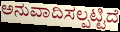
ಅನುವಾದಿಸಲ್ಪಟ್ಟಿದೆ